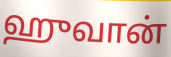
ஹுவான்